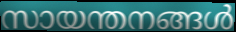
സായന്തനങ്ങൾ